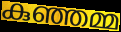
കുഞ്ഞമ്മ